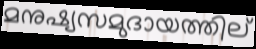
മനുഷ്യസമുദായത്തില്